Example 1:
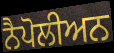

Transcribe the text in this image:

ਨੈਪੋਲੀਅਨ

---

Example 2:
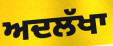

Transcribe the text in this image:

ਅਦਲੱਖਾ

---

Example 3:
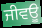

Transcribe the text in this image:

ਜੀਵਊ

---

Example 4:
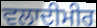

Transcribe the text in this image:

ਵਲਾਦੀਮੀਰ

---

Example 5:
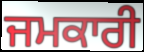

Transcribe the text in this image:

ਜਮਕਾਰੀ